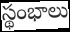
స్థంభాలు